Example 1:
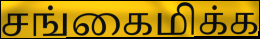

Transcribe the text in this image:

சங்கைமிக்க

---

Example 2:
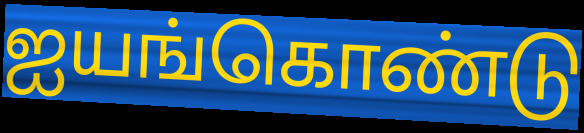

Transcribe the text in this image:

ஐயங்கொண்டு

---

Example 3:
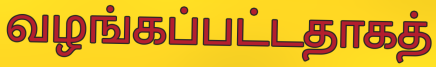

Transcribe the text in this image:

வழங்கப்பட்டதாகத்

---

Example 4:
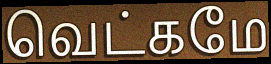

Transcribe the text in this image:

வெட்கமே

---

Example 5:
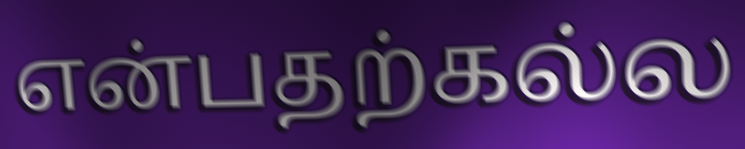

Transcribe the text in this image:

என்பதற்கல்ல